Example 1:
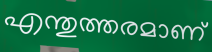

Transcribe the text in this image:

എന്തുത്തരമാണ്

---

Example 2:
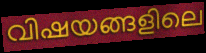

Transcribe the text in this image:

വിഷയങ്ങളിലെ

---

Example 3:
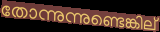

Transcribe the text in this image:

തോന്നുന്നുണ്ടെങ്കില്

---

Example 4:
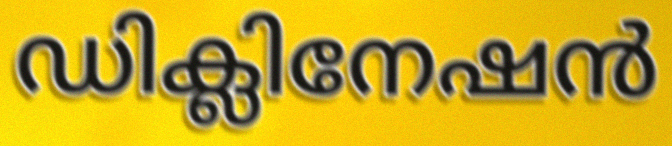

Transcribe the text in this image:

ഡിക്ലിനേഷൻ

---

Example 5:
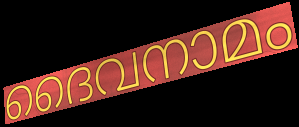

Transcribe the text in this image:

ദൈവനാമം